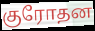
குரோதன